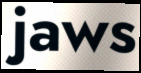
jaws